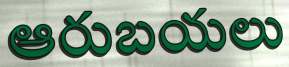
ఆరుబయలు